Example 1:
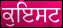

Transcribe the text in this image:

ਕੁਇਸਟ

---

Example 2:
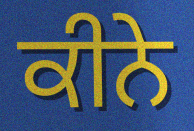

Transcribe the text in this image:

ਕੀਨੇ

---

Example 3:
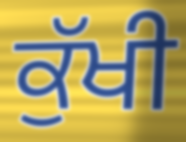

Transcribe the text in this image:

ਕੁੱਖੀ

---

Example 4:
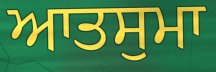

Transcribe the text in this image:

ਆਤਸੁਮਾ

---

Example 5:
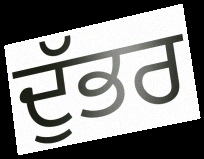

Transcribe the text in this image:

ਦੁੱਭਰ